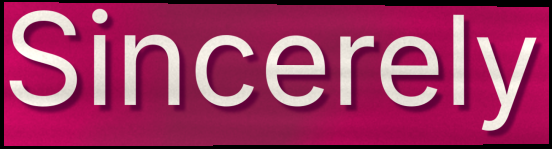
Sincerely